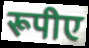
रूपीए